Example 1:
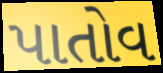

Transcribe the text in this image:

પાતોવ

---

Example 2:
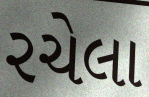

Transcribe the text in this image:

રચેલા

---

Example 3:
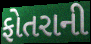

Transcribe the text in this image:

ફોતરાની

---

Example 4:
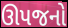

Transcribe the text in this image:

ઊપજનો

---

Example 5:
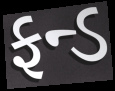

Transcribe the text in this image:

ફન્ડ